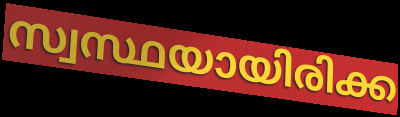
സ്വസ്ഥയായിരിക്ക